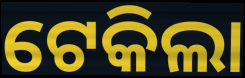
ଟେକିଲା